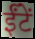
ईंटें